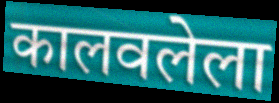
कालवलेला